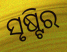
ସୃଷ୍ଟିର